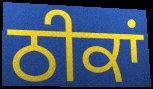
ਠੀਕਾਂ